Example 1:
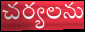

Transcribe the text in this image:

చర్యలను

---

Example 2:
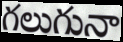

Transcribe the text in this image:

గలుగునా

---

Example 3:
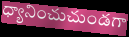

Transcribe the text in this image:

ధ్యానించుచుండగా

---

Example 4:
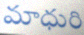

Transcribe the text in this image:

మాధురి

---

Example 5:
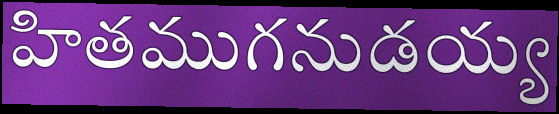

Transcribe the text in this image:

హితముగనుడయ్య